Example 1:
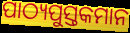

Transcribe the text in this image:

ପାଠ୍ୟପୁସ୍ତକମାନ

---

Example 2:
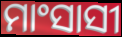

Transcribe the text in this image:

ମାଂସାସୀ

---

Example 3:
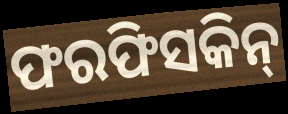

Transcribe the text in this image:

ଫରଫିସକିନ୍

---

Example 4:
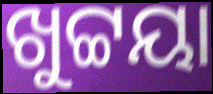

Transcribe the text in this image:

ଖୁଟ୍ଟୟା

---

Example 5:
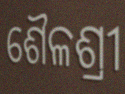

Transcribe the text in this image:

ଶୈଳଶ୍ରୀ